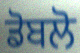
ਡੋਬਲੋ